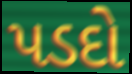
પડદો